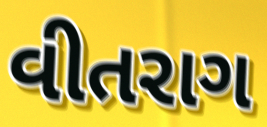
વીતરાગ